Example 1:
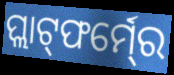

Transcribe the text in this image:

ପ୍ଲାଟ୍‍ଫର୍ମ୍‍ରେ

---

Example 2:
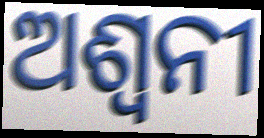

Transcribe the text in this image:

ଅଶ୍ଵନୀ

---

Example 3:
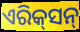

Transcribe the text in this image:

ଏରିକ୍‌ସନ୍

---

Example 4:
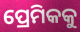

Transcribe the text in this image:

ପ୍ରେମିକକୁ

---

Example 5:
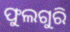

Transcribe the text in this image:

ଫୁଲଗୁରି